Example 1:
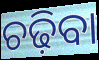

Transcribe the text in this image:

ଚଢ଼ିବା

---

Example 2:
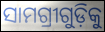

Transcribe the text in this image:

ସାମଗ୍ରୀଗୁଡ଼ିକୁ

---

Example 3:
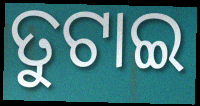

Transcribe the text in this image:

ତୁଟାଇ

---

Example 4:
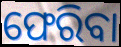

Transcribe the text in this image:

ଫେରିବା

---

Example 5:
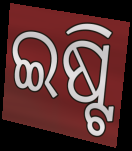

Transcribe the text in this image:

ଇଷ୍ଟି